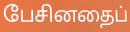
பேசினதைப்